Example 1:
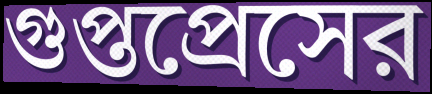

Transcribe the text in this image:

গুপ্তপ্রেসের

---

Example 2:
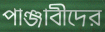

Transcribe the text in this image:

পাঞ্জাবীদের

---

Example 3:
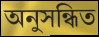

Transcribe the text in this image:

অনুসন্ধিত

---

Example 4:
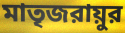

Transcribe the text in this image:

মাতৃজরায়ুর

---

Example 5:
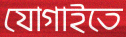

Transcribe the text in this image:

যোগাইতে